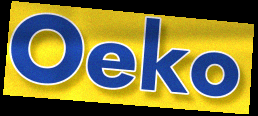
Oeko